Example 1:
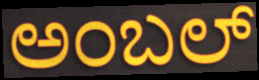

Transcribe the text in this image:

ಅಂಬಲ್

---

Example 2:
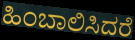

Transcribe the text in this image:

ಹಿಂಬಾಲಿಸಿದರೆ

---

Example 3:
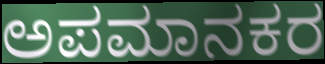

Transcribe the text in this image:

ಅಪಮಾನಕರ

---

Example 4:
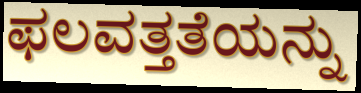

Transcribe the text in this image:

ಫಲವತ್ತತೆಯನ್ನು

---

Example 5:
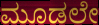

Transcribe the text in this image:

ಮೂಡಲೇ